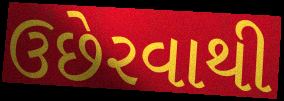
ઉછેરવાથી